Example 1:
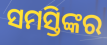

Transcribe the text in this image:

ସମସ୍ତିଙ୍କର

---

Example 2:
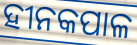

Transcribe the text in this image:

ହୀନକପାଳ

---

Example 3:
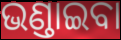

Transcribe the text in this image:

ଭଣ୍ଡାଇବା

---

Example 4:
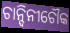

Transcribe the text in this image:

ଚାନ୍ଦିନୀଚୌକ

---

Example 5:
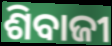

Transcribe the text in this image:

ଶିବାଜୀ